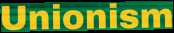
Unionism